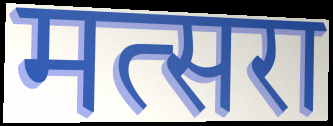
मत्सरा